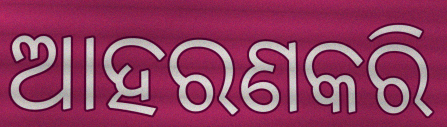
ଆହରଣକରି